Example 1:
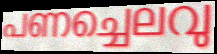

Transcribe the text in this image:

പണച്ചെലവു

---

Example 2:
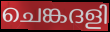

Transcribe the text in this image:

ചെങ്കദളി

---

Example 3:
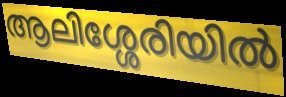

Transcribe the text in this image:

ആലിശ്ശേരിയിൽ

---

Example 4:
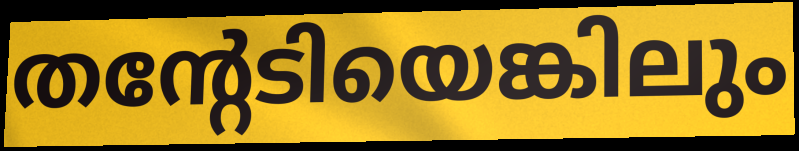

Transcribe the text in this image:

തന്റേടിയെങ്കിലും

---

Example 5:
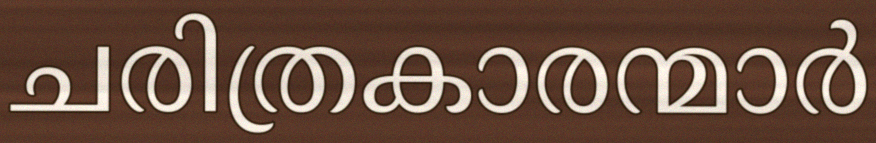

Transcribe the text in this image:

ചരിത്രകാരന്മാർ